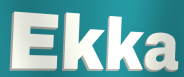
Ekka